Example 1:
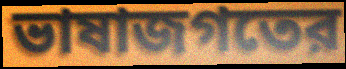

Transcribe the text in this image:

ভাষাজগতের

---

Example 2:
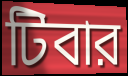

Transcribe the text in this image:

টিবার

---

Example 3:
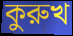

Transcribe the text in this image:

কুরুখ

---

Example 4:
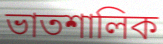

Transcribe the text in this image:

ভাতশালিক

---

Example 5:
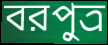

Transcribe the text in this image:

বরপুত্র